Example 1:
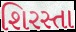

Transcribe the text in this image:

શિરસ્તા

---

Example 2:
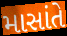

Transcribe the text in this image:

માસાંતે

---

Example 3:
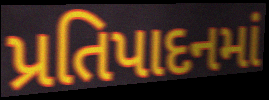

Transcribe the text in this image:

પ્રતિપાદનમાં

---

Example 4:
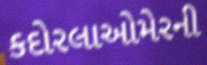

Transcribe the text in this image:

કદોરલાઓમેરની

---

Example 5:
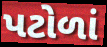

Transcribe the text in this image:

પટોળાં